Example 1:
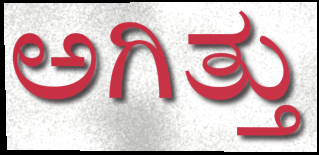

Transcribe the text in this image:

ಅಗಿತ್ತು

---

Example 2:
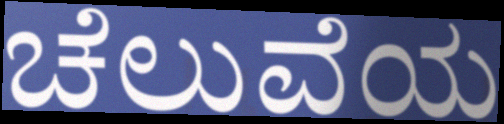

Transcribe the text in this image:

ಚೆಲುವೆಯ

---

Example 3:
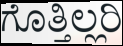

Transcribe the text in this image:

ಗೊತ್ತಿಲ್ಲರಿ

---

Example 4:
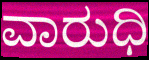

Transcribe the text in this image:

ವಾರುಧಿ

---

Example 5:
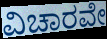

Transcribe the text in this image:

ವಿಚಾರವೇ